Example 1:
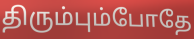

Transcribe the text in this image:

திரும்பும்போதே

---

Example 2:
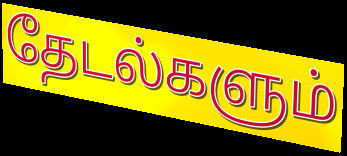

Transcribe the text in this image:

தேடல்களும்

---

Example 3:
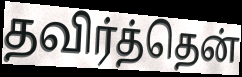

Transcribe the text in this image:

தவிர்த்தென்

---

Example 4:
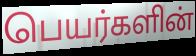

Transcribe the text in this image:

பெயர்களின்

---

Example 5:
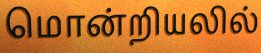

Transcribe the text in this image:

மொன்றியலில்